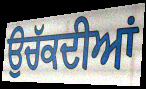
ਉਚੱਕਦੀਆਂ